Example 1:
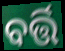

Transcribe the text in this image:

ବର୍ତ୍ତି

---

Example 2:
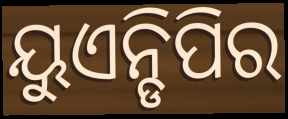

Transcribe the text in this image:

ୟୁଏନ୍ଡିପିର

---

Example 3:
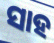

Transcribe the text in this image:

ସାହ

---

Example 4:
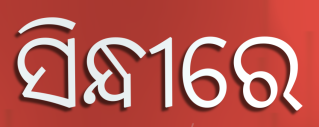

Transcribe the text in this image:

ସିନ୍ଧୀରେ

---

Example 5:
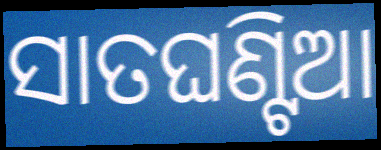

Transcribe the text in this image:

ସାତଘଣ୍ଟିଆ